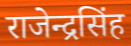
राजेन्द्रसिंह